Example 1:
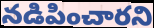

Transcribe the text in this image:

నడిపించారని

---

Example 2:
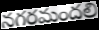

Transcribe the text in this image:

నగరమందలి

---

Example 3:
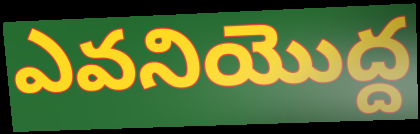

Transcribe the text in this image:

ఎవనియొద్ద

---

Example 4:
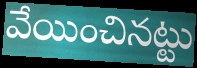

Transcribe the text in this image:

వేయించినట్టు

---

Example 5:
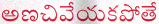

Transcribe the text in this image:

అణచివేయకపోతే